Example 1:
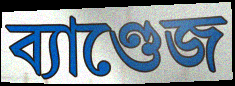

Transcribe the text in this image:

ব্যাণ্ডেজ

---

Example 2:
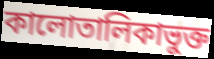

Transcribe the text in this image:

কালোতালিকাভুক্ত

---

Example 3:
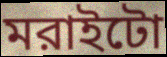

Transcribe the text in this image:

মরাইটো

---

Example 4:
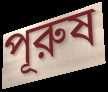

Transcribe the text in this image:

পূরুষ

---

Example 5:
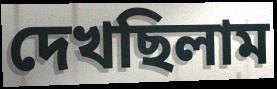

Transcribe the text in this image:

দেখছিলাম